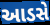
આડસે